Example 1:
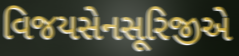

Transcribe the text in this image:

વિજયસેનસૂરિજીએ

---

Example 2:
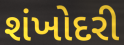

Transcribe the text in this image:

શંખોદરી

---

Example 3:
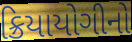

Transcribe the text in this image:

ક્રિયાયોગીનો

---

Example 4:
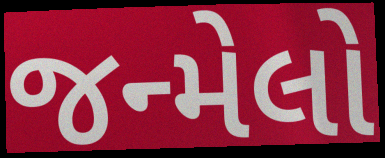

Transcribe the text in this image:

જન્મેલો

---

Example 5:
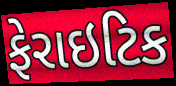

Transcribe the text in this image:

ફેરાઇટિક